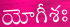
యోగీశః